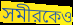
সমীরকেও